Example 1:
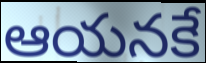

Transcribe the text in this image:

ఆయనకే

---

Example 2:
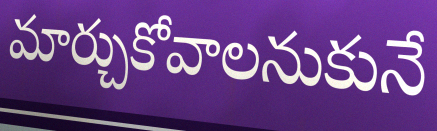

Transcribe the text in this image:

మార్చుకోవాలనుకునే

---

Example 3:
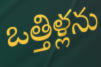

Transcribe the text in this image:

ఒత్తిళ్లను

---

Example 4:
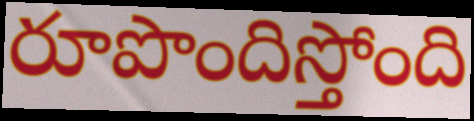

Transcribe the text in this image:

రూపొందిస్తోంది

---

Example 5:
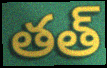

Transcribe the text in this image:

తత్